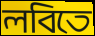
লবিতে